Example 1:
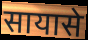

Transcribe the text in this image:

सायासे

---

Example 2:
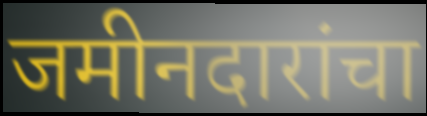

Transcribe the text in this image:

जमीनदारांचा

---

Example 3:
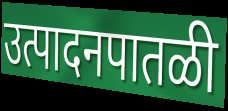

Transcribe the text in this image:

उत्पादनपातळी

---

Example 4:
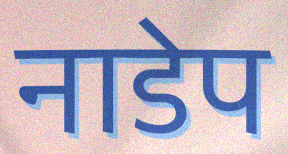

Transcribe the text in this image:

नाडेप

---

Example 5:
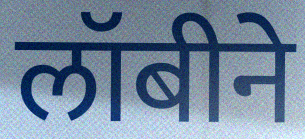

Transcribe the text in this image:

लॉबीने